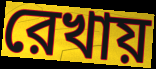
রেখায়